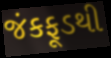
જંકફૂડથી